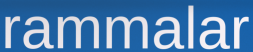
rammalar